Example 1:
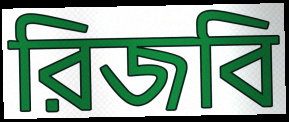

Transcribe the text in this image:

রিজবি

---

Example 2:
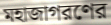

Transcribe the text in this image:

মহাজাগরণের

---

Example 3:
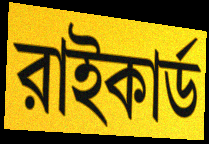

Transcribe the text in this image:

রাইকার্ড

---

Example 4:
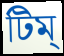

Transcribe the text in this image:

টিম্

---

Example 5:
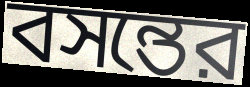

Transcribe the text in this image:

বসন্তের